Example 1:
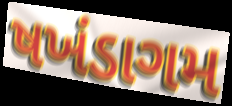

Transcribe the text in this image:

ષખંડાગમ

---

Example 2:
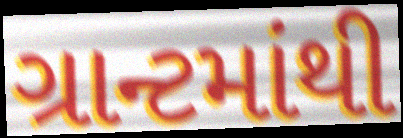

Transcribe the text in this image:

ગ્રાન્ટમાંથી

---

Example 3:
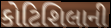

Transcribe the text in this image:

કોટિશિલાની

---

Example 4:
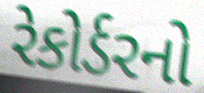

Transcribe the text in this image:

રેકોર્ડરનો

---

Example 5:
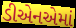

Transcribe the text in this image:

ડીએનએમાં